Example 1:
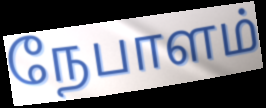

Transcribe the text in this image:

நேபாளம்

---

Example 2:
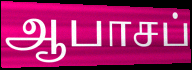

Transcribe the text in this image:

ஆபாசப்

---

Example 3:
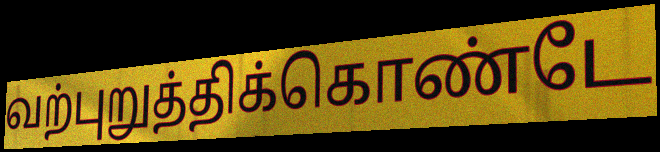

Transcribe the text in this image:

வற்புறுத்திக்கொண்டே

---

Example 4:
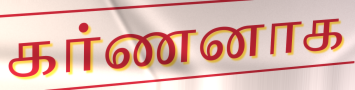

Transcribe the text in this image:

கர்ணனாக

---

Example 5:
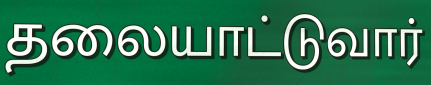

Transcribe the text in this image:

தலையாட்டுவார்